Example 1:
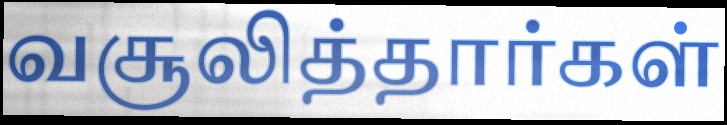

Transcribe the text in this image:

வசூலித்தார்கள்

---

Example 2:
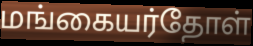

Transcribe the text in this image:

மங்கையர்தோள்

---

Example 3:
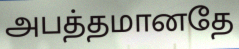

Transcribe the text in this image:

அபத்தமானதே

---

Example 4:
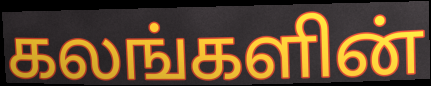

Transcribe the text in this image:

கலங்களின்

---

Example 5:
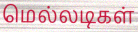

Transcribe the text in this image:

மெல்லடிகள்